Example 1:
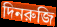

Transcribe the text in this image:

দিনরুজি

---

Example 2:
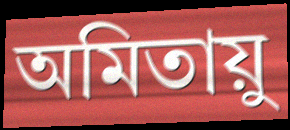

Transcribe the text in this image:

অমিতায়ু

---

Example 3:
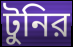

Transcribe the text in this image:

টুনির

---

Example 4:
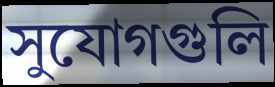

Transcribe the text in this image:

সুযোগগুলি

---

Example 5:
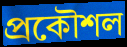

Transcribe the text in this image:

প্রকৌশল